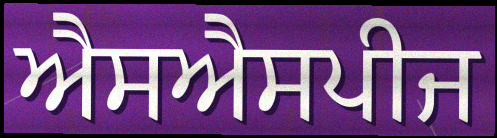
ਐਸਐਸਪੀਜ